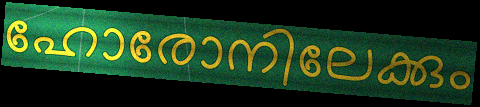
ഹോരോനിലേക്കും